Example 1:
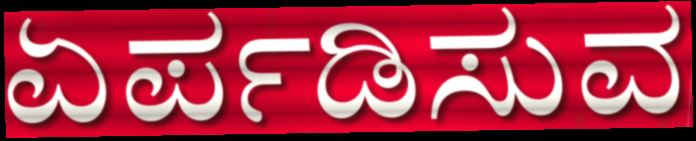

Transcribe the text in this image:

ಏರ್ಪಡಿಸುವ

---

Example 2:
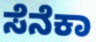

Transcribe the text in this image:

ಸೆನೆಕಾ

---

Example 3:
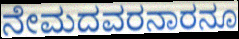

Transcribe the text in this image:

ನೇಮದವರನಾರನೂ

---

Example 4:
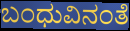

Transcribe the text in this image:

ಬಂಧುವಿನಂತೆ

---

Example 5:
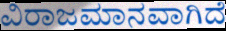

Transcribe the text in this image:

ವಿರಾಜಮಾನವಾಗಿದೆ